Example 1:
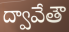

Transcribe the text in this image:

ద్వావేతౌ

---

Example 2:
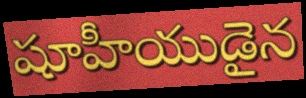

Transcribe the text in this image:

షూహీయుడైన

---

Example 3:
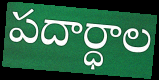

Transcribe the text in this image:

పదార్ధాల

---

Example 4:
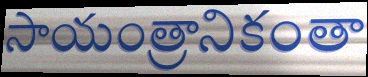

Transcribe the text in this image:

సాయంత్రానికంతా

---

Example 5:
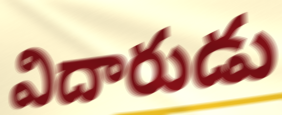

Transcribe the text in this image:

విదారుడు